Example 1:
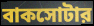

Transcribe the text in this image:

বাকসোটার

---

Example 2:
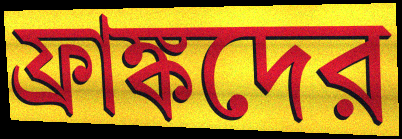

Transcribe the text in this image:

ফ্রাঙ্কদের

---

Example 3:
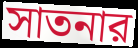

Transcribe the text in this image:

সাতনার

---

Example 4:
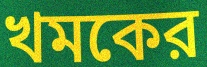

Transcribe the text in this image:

খমকের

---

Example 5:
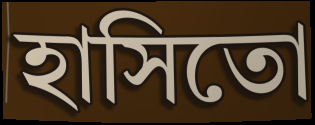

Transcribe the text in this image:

হাসিতো